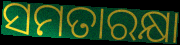
ସମତାରକ୍ଷା